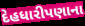
દેહધારીપણાના